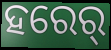
ହରେର୍